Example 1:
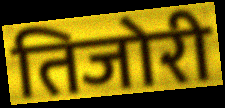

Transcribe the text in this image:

तिजोरी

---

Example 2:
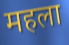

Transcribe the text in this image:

महला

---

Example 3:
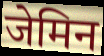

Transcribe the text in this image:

जेमिन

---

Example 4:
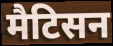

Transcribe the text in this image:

मैटिसन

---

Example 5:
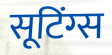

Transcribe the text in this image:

सूटिंग्स